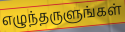
எழுந்தருளுங்கள்